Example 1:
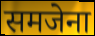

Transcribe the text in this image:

समजेना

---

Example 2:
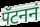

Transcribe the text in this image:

पॅटननं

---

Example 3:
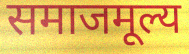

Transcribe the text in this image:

समाजमूल्य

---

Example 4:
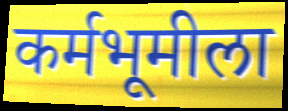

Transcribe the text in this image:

कर्मभूमीला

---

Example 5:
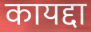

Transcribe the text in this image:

कायद्दा